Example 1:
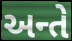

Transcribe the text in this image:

અન્તે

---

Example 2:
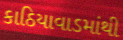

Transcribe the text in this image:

કાઠિયાવાડમાંથી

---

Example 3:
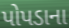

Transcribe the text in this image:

પોપડાના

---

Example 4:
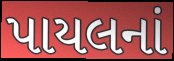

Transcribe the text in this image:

પાયલનાં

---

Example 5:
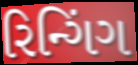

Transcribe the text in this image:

રિન્ગિંગ